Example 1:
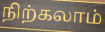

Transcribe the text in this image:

நிற்கலாம்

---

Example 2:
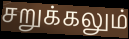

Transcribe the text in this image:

சறுக்கலும்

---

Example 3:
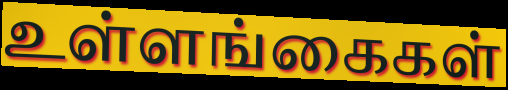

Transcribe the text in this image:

உள்ளங்கைகள்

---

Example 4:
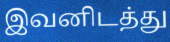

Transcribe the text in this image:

இவனிடத்து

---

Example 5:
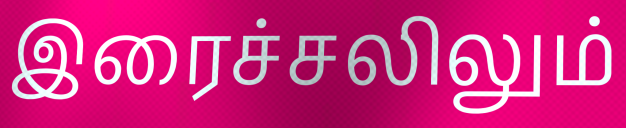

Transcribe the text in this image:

இரைச்சலிலும்